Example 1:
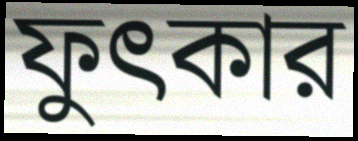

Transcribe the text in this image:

ফুৎকার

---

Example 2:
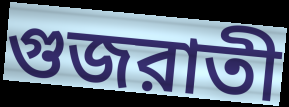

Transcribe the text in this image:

গুজরাতী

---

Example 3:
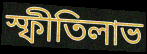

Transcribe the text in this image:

স্ফীতিলাভ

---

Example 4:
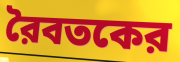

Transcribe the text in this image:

রৈবতকের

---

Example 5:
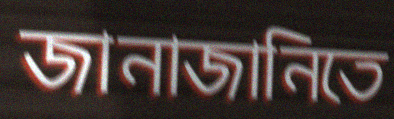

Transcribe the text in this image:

জানাজানিতে